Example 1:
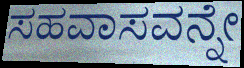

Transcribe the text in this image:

ಸಹವಾಸವನ್ನೇ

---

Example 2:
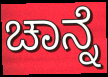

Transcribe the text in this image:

ಚಾನ್ನೆ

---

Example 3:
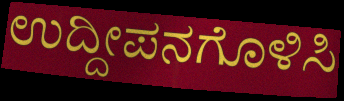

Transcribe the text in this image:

ಉದ್ದೀಪನಗೊಳಿಸಿ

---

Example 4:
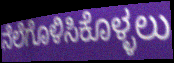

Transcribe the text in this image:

ನೆಲೆಗೊಳಿಸಿಕೊಳ್ಳಲು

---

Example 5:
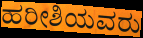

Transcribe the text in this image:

ಹರೀಶಿಯವರು